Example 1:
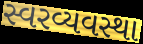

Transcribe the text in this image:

સ્વરવ્યવસ્થા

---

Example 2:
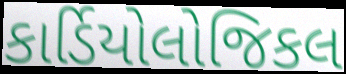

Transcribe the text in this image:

કાર્ડિયોલોજિકલ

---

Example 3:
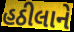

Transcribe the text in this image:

હઠીલાને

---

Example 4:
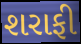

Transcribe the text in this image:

શરાફી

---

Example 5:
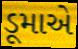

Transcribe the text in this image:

ડૂમાએ